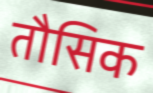
तौसिक